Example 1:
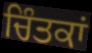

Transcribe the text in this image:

ਚਿੰਤਕਾਂ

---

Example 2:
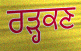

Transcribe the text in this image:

ਰੜ੍ਹਕਣ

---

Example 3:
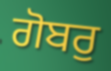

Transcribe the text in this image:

ਗੋਬਰੁ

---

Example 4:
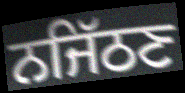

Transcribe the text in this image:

ਨਜਿੱਠਣ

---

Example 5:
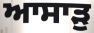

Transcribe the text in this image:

ਆਸਾੜੁ